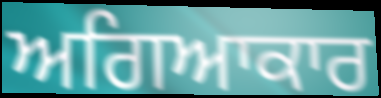
ਅਗਿਆਕਾਰ